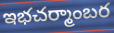
ఇభచర్మాంబర